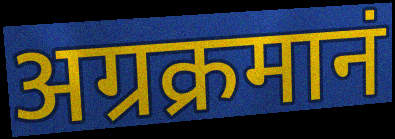
अग्रक्रमानं